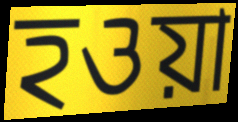
হওয়া